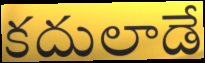
కదులాడే